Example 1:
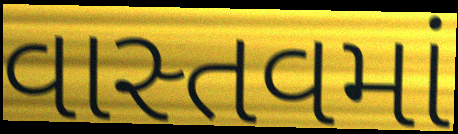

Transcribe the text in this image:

વાસ્તવમાં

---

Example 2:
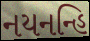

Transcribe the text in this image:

નયનન્હિ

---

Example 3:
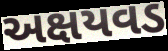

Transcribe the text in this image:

અક્ષયવડ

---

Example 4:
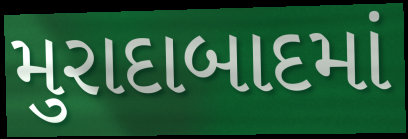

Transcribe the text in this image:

મુરાદાબાદમાં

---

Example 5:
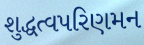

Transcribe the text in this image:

શુદ્ધત્વપરિણમન